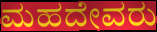
ಮಹದೇವರು